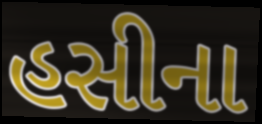
હસીના